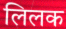
लिलक